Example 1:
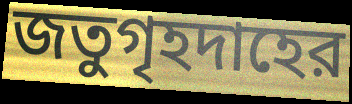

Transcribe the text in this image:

জতুগৃহদাহের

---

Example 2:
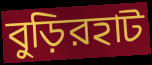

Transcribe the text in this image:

বুড়িরহাট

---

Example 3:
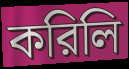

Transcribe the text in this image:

করিলি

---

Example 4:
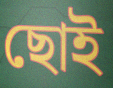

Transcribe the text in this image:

ছোই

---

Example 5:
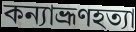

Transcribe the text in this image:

কন্যাভ্রূণহত্যা